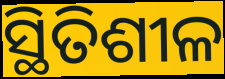
ସ୍ଥିତିଶୀଳ